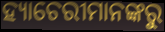
ହ୍ୟାଚେରୀମାନଙ୍କରୁ